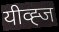
यीव्ह्ज